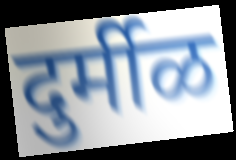
दुर्मीळ